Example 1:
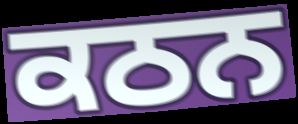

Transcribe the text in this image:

ਕਠਨ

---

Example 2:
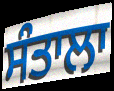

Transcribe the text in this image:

ਸੰਤਾਲਾ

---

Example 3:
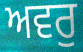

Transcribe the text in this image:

ਅਵਰੁ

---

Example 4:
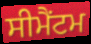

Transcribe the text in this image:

ਸੀਮੈਂਟਮ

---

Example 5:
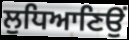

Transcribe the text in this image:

ਲੁਧਿਆਣਿਉਂ